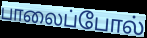
பாலைப்போல்